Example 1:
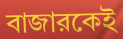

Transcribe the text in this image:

বাজারকেই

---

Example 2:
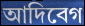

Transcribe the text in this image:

আদিবেগ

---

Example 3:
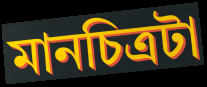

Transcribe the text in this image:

মানচিত্রটা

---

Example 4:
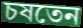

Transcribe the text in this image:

চষতেন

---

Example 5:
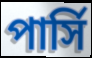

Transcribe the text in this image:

পার্সি